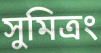
সুমিত্রং